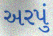
અરપું